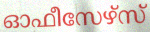
ഓഫീസേഴ്സ്